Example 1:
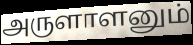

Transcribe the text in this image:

அருளாளனும்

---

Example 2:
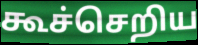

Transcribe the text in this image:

கூச்செறிய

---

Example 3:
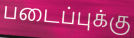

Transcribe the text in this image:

படைப்புக்கு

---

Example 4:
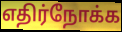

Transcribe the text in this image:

எதிர்நோக்க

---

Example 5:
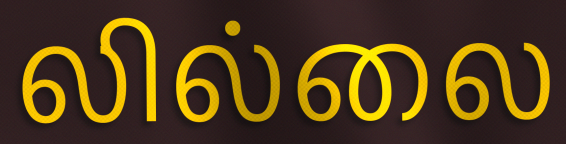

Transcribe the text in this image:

லில்லை